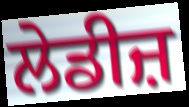
ਲੇਡੀਜ਼